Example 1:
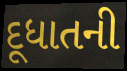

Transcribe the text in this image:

દૂધાતની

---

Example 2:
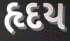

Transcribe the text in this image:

હૃદય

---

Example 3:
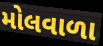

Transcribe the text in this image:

મોલવાળા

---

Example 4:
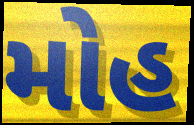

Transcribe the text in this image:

મોહ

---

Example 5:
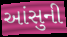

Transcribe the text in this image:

આંસુની